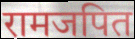
रामजपित